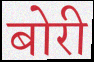
बोरी